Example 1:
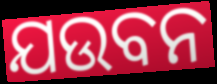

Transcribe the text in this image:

ଯଉବନ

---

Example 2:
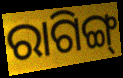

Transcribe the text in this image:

ରାଗିଙ୍ଗ୍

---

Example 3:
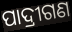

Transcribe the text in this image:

ପାଦ୍ରୀଗଣ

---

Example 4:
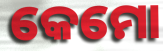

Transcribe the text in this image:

କେମୋ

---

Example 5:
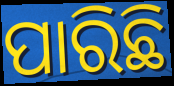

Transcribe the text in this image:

ପାରିଛି